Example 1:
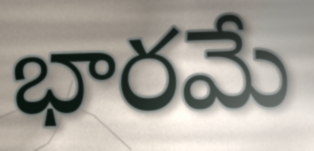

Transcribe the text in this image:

భారమే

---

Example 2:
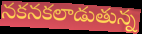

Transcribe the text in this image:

నకనకలాడుతున్న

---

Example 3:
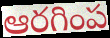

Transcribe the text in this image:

ఆరగింప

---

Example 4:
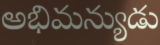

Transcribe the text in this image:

అభిమన్యుడు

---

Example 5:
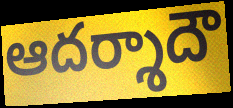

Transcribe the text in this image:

ఆదర్శాదౌ